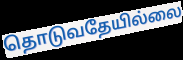
தொடுவதேயில்லை